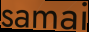
samai